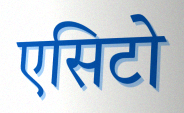
एसिटो